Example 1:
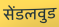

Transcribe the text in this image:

सेंडलवुड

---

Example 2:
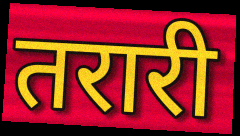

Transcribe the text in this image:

तरारी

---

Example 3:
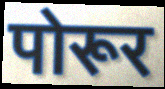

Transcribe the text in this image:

पोरूर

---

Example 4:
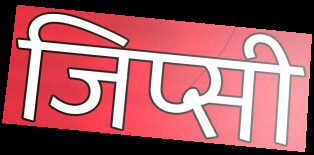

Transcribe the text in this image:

जिप्सी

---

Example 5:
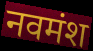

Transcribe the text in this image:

नवमंश